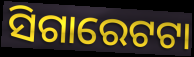
ସିଗାରେଟଟା